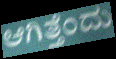
ಆಗಿತ್ತೆಂದು